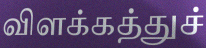
விளக்கத்துச்